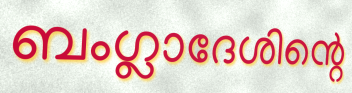
ബംഗ്ലാദേശിന്റെ